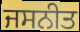
ਜਸਨੀਤ